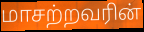
மாசற்றவரின்